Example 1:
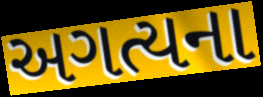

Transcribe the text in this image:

અગત્યના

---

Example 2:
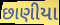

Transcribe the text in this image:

છાણીયા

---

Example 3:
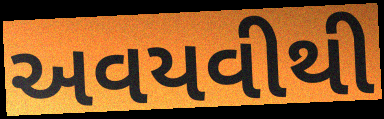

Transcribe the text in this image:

અવયવીથી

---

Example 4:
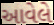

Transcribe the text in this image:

આવેલે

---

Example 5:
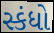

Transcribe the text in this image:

સ્કંધો